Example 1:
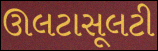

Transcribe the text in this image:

ઊલટાસૂલટી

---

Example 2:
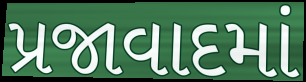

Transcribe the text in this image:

પ્રજાવાદમાં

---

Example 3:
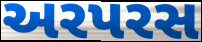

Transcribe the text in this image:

અરપરસ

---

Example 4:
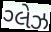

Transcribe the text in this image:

ગ્લેઝ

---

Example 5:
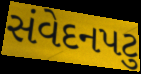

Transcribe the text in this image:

સંવેદનપટુ